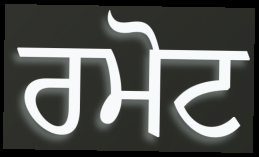
ਰਮੋਟ